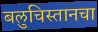
बलुचिस्तानचा